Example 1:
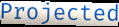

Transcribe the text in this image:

Projected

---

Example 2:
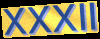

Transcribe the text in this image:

XXXII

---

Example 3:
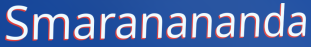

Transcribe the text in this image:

Smaranananda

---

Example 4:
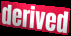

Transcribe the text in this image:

derived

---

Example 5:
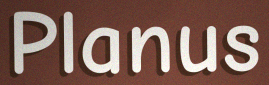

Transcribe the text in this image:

Planus